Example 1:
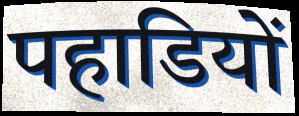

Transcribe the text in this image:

पहाडियों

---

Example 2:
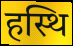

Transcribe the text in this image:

हस्थि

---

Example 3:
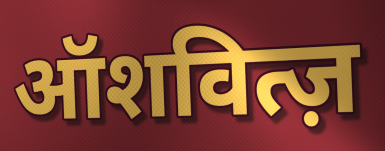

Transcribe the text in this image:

ऑशवित्ज़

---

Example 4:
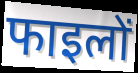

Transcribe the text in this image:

फाइलों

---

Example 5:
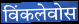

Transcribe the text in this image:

विंकलेवोस